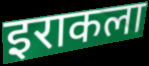
इराकला